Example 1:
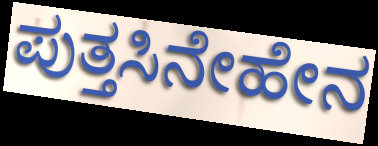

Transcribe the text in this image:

ಪುತ್ತಸಿನೇಹೇನ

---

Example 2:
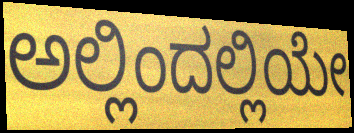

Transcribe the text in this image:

ಅಲ್ಲಿಂದಲ್ಲಿಯೇ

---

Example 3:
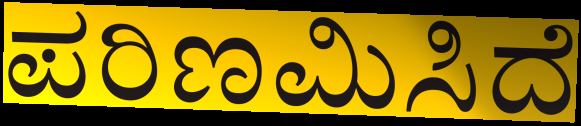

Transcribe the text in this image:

ಪರಿಣಮಿಸಿದೆ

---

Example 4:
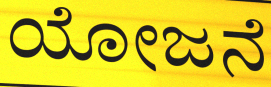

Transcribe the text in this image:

ಯೋಜನೆ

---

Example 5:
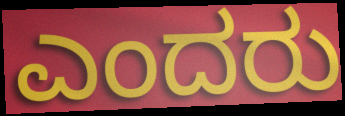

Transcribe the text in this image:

ಎಂದರು